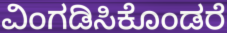
ವಿಂಗಡಿಸಿಕೊಂಡರೆ